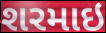
શરમાઇ